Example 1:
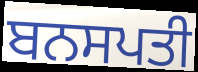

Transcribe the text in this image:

ਬਨਸਪਤੀ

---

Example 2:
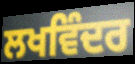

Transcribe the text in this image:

ਲਖਵਿੰਦਰ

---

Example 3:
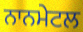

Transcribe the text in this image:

ਨਾਨਮੇਟਲ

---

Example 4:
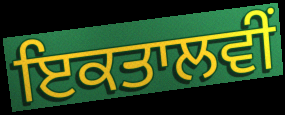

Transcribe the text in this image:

ਇਕਤਾਲਵੀਂ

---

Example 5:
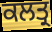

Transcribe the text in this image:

ਕਲਤ੍ਰ